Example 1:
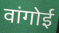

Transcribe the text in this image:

वांगोई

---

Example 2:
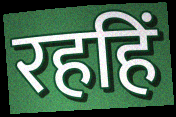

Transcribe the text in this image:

रहहिं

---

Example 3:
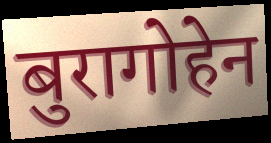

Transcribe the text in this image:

बुरागोहेन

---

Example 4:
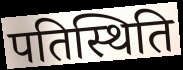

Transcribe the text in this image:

पतिस्थिति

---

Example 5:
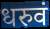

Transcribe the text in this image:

धरुवं